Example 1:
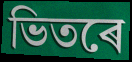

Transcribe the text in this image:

ভিতৰে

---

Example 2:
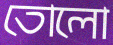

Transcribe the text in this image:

তোলো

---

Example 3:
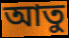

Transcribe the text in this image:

আতু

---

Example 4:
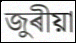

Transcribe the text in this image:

জুৰীয়া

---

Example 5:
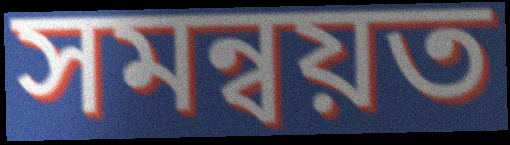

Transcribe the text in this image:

সমন্বয়ত